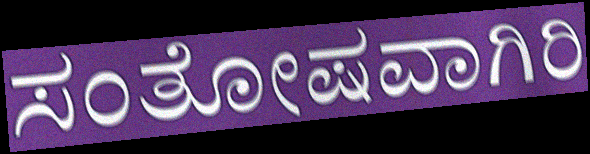
ಸಂತೋಷವಾಗಿರಿ